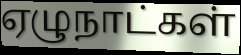
ஏழுநாட்கள்